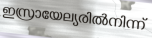
ഇസ്രായേല്യരിൽനിന്ന്